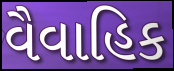
વૈવાહિક